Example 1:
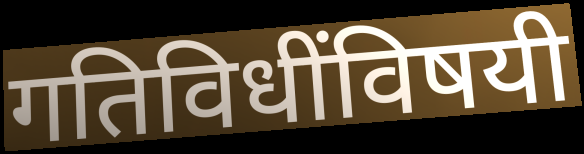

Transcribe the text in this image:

गतिविधींविषयी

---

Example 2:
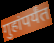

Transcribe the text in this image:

गुहांपर्यंत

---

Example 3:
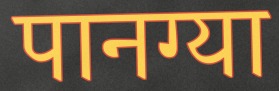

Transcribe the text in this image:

पानग्या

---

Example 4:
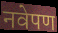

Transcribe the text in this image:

नवेपण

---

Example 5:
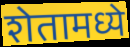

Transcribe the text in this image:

शेतामध्ये